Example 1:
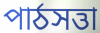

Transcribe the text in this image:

পাঠসত্তা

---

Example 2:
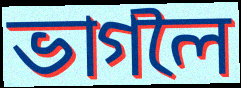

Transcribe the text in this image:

ভাগলৈ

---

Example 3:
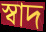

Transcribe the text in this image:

স্বাদ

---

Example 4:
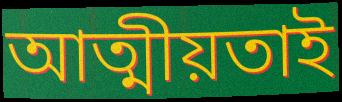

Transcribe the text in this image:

আত্মীয়তাই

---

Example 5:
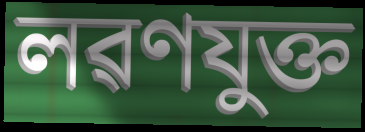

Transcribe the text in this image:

লৱণযুক্ত